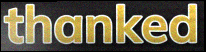
thanked